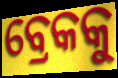
ବ୍ରେକକୁ